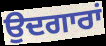
ਉਦਗਾਰਾਂ